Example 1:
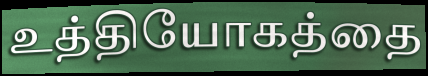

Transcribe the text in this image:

உத்தியோகத்தை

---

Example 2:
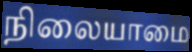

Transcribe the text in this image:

நிலையாமை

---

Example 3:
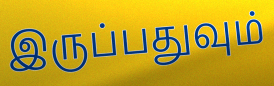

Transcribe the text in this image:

இருப்பதுவும்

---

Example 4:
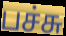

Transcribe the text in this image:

பச்சு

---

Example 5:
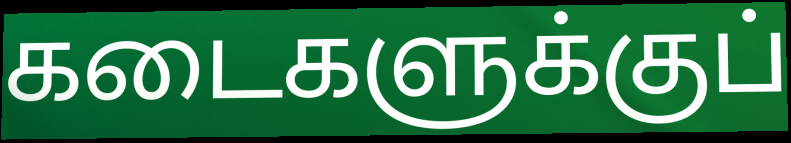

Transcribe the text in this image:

கடைகளுக்குப்